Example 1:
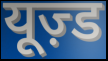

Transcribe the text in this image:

यूज़्ड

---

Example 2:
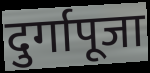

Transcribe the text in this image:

दुर्गापूजा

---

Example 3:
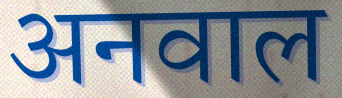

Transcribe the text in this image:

अनवाल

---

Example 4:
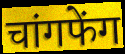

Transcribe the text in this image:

चांगफेंग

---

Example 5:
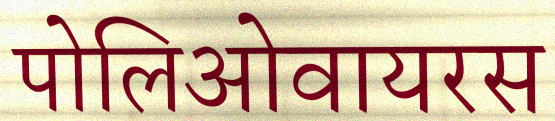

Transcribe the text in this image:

पोलिओवायरस